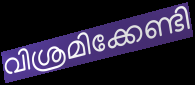
വിശ്രമിക്കേണ്ടി